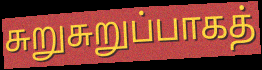
சுறுசுறுப்பாகத்